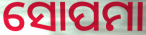
ସୋପମା